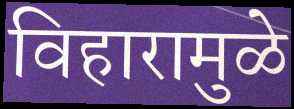
विहारामुळे